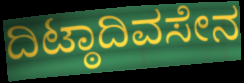
ದಿಟ್ಠಾದಿವಸೇನ